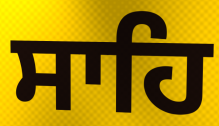
ਸਾਹਿ